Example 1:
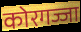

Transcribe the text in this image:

कोरगज्जा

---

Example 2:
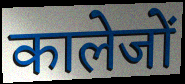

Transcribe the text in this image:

कालेजों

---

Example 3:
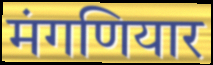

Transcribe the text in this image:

मंगणियार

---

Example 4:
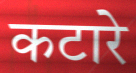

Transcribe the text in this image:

कटारे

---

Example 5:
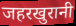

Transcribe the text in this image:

जहरखुरानी